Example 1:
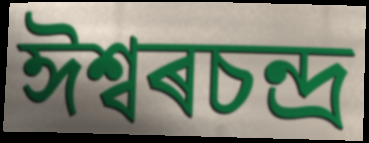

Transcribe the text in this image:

ঈশ্বৰচন্দ্ৰ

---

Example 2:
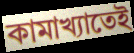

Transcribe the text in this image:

কামাখ্যাতেই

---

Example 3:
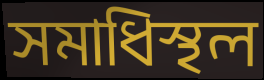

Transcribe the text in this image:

সমাধিস্থল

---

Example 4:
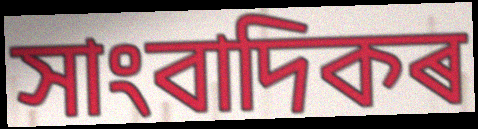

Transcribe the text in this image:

সাংবাদিকৰ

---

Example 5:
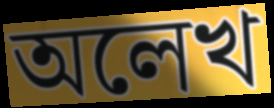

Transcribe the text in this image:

অলেখ